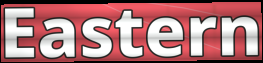
Eastern